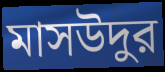
মাসউদুর